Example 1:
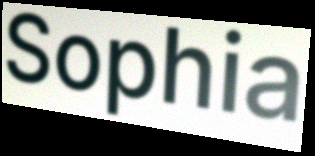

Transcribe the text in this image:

Sophia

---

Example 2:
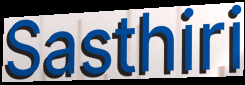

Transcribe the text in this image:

Sasthiri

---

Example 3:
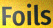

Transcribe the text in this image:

Foils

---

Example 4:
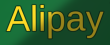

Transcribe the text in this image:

Alipay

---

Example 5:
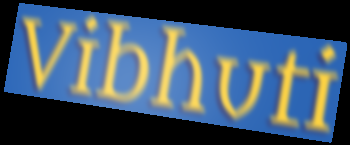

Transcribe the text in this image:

Vibhuti